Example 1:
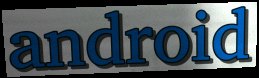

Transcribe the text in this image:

android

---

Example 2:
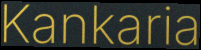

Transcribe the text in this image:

Kankaria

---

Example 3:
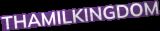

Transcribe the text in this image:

THAMILKINGDOM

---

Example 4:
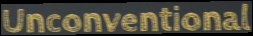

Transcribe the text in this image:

Unconventional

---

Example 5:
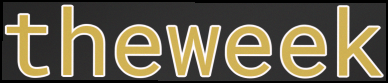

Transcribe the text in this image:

theweek